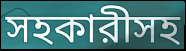
সহকারীসহ